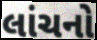
લાંચનો